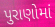
પુરાણોમાં